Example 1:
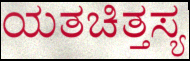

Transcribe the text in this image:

ಯತಚಿತ್ತಸ್ಯ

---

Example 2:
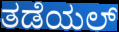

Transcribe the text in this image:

ತಡೆಯಲ್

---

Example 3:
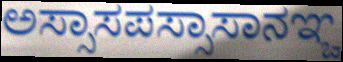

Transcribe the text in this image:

ಅಸ್ಸಾಸಪಸ್ಸಾಸಾನಞ್ಚ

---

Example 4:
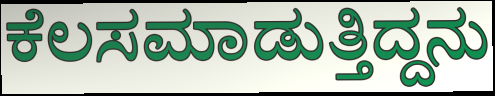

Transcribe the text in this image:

ಕೆಲಸಮಾಡುತ್ತಿದ್ದನು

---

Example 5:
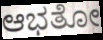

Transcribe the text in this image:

ಆಭತೋ